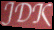
JDK